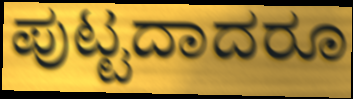
ಪುಟ್ಟದಾದರೂ